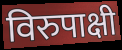
विरुपाक्षी